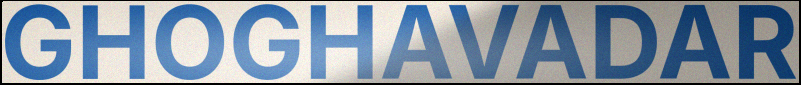
GHOGHAVADAR